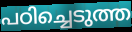
പഠിച്ചെടുത്ത